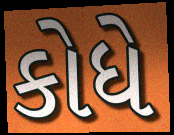
કોધે